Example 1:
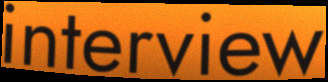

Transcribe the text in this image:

interview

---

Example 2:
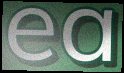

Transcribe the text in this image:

ea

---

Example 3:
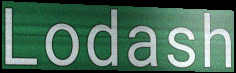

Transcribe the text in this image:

Lodash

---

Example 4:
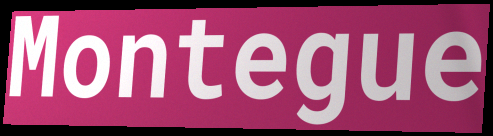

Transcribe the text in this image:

Montegue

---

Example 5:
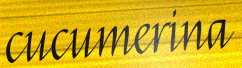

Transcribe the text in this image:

cucumerina